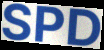
SPD